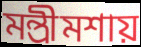
মন্ত্রীমশায়